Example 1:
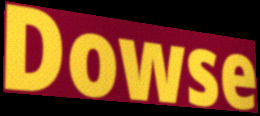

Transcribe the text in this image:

Dowse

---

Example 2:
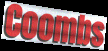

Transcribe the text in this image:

Coombs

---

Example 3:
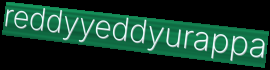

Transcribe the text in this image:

reddyyeddyurappa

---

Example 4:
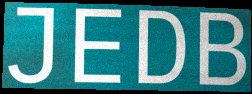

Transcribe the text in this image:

JEDB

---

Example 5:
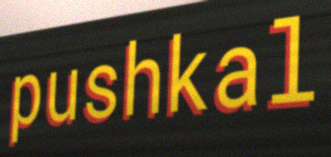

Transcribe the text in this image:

pushkal